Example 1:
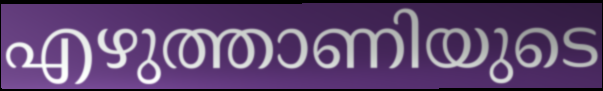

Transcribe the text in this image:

എഴുത്താണിയുടെ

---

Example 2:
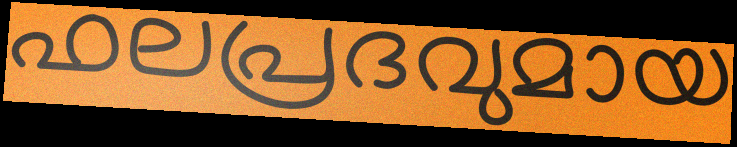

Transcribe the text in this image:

ഫലപ്രദവുമായ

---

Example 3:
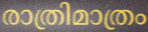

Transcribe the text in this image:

രാത്രിമാത്രം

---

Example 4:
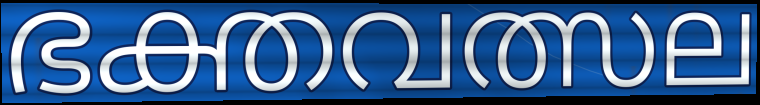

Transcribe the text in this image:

ഭക്തവത്സല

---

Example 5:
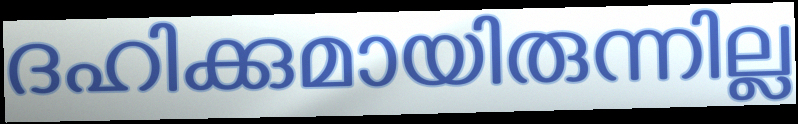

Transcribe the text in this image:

ദഹിക്കുമായിരുന്നില്ല